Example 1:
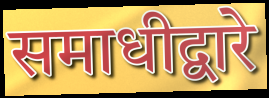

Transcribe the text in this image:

समाधीद्वारे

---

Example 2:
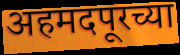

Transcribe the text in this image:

अहमदपूरच्या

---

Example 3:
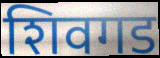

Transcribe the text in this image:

शिवगड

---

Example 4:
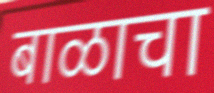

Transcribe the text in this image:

बाळाचा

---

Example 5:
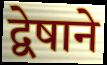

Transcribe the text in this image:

द्वेषाने